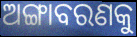
ଅଙ୍ଗାବରଣକୁ